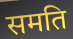
समति